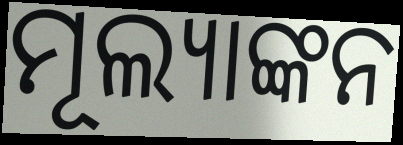
ମୂଲ୍ୟାଙ୍କନ